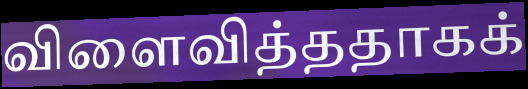
விளைவித்ததாகக்